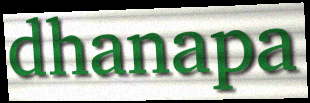
dhanapa